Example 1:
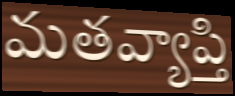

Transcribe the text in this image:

మతవ్యాప్తి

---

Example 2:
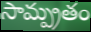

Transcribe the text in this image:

సామ్ప్రతం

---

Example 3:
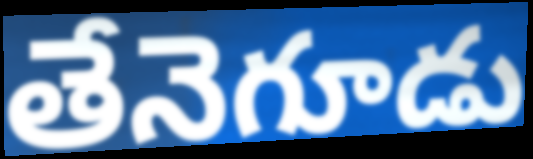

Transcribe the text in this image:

తేనెగూడు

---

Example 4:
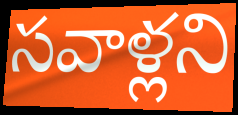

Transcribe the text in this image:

సవాళ్లని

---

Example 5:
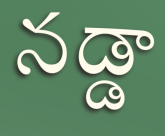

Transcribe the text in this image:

నడ్డా